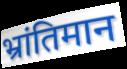
भ्रांतिमान